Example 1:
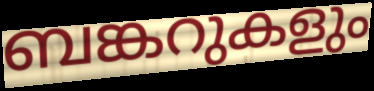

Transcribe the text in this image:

ബങ്കറുകളും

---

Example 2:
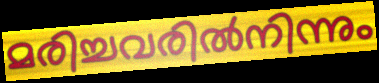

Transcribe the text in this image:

മരിച്ചവരിൽനിന്നും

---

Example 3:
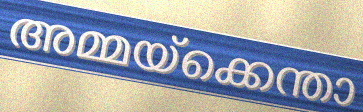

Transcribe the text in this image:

അമ്മയ്‌ക്കെന്താ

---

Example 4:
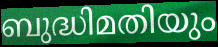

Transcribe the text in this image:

ബുദ്ധിമതിയും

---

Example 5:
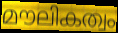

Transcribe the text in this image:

മൗലികത്വം